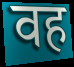
वह